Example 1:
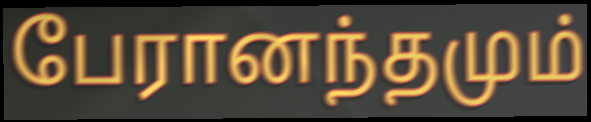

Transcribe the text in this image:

பேரானந்தமும்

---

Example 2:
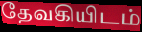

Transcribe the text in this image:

தேவகியிடம்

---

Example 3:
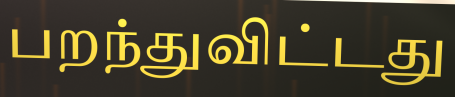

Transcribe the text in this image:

பறந்துவிட்டது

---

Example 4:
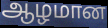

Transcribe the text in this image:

ஆழமான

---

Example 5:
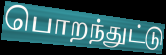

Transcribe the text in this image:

பொறந்துட்டு